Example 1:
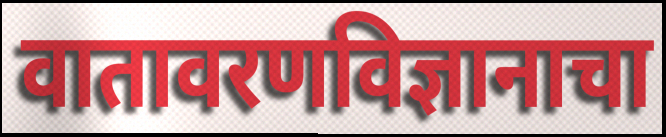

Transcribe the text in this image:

वातावरणविज्ञानाचा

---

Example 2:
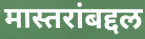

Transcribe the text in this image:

मास्तरांबद्दल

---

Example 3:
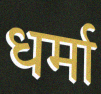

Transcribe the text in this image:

धर्मा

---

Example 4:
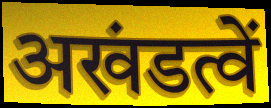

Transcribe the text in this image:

अखंडत्वें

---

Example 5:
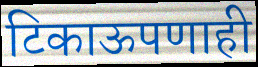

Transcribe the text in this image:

टिकाऊपणाही